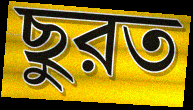
ছুরত